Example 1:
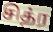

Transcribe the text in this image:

சித்ர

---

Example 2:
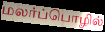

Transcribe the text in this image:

மலர்ப்பொழில்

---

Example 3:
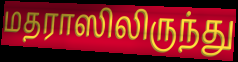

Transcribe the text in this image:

மதராஸிலிருந்து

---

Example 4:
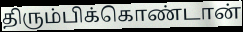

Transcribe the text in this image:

திரும்பிக்கொண்டான்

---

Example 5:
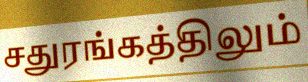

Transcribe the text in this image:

சதுரங்கத்திலும்